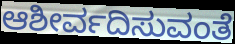
ಆಶೀರ್ವದಿಸುವಂತೆ